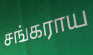
சங்கராய